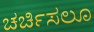
ಚರ್ಚಿಸಲೂ